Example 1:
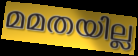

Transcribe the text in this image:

മമതയില്ല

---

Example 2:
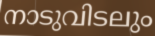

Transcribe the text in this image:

നാടുവിടലും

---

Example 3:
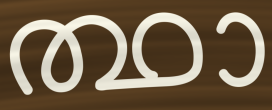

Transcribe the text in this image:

ത്ഥാ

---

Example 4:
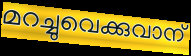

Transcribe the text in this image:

മറച്ചുവെക്കുവാന്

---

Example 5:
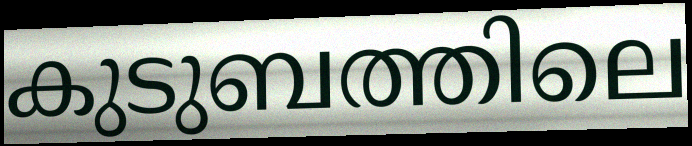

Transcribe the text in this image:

കുടുബത്തിലെ